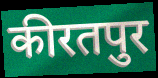
कीरतपुर